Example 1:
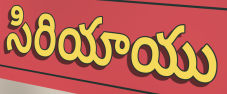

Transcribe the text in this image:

సిరియాయు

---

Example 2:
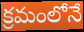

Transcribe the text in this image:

క్రమంలోనే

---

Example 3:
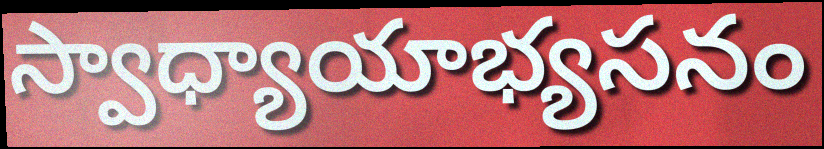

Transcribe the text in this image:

స్వాధ్యాయాభ్యసనం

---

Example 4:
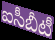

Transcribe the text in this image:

ఐసీబీటీ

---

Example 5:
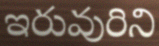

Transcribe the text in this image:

ఇరువురిని